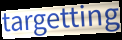
targetting